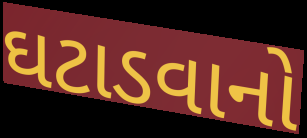
ઘટાડવાનો